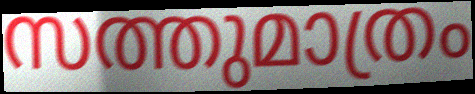
സത്തുമാത്രം